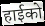
हाईको